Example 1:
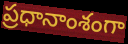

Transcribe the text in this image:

ప్రధానాంశంగా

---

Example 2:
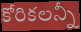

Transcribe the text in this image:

కోరికలన్నీ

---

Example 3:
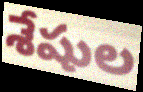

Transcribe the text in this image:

శేషుల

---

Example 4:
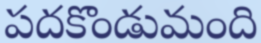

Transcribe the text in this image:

పదకొండుమంది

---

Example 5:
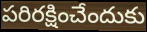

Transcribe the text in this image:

పరిరక్షించేందుకు